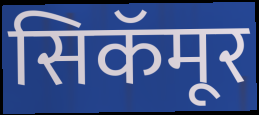
सिकॅमूर